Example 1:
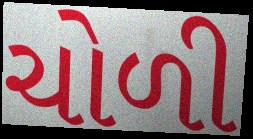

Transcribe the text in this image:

ચોળી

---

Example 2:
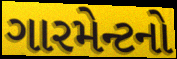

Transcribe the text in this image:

ગારમેન્ટનો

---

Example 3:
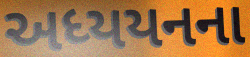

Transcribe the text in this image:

અધ્યયનના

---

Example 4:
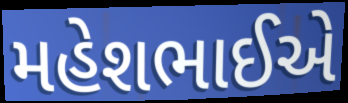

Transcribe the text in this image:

મહેશભાઈએ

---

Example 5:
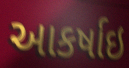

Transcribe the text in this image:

આકર્ષાઇ